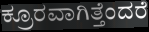
ಕ್ರೂರವಾಗಿತ್ತೆಂದರೆ